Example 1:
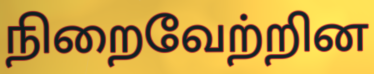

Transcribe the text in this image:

நிறைவேற்றின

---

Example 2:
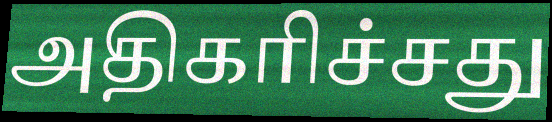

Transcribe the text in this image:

அதிகரிச்சது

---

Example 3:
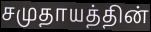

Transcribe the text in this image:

சமுதாயத்தின்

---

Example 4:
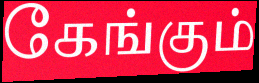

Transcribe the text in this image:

கேங்கும்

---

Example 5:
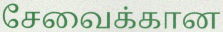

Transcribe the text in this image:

சேவைக்கான